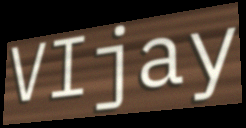
VIjay